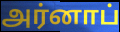
அர்னாப்